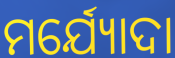
ମର୍ଯ୍ୟୋଦା